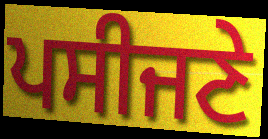
ਪਸੀਜਣੇ